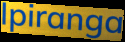
Ipiranga